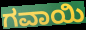
ಗವಾಯಿ